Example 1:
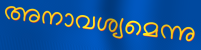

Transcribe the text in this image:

അനാവശ്യമെന്നു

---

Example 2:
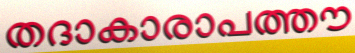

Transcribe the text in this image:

തദാകാരാപത്തൗ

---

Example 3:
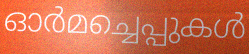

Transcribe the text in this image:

ഓർമച്ചെപ്പുകൾ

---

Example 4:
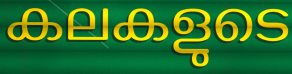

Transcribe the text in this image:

കലകളുടെ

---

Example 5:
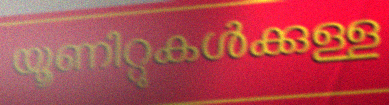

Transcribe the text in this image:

യൂണിറ്റുകൾക്കുള്ള